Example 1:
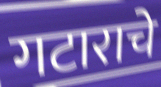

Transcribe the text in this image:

गटाराचे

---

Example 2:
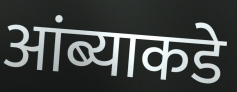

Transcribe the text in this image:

आंब्याकडे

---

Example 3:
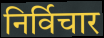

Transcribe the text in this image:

निर्विचार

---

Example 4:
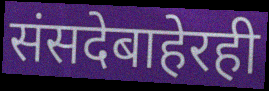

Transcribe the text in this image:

संसदेबाहेरही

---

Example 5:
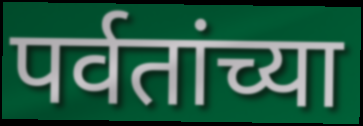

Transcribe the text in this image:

पर्वतांच्या